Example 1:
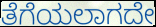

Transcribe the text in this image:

ತೆಗೆಯಲಾಗದೇ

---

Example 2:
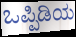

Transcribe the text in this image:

ಒಪ್ಪಿಡಿಯ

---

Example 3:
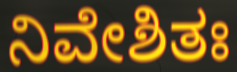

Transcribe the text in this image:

ನಿವೇಶಿತಃ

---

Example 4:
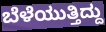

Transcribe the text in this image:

ಬೆಳೆಯುತ್ತಿದ್ದು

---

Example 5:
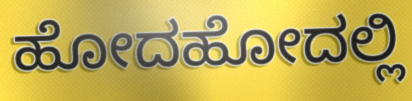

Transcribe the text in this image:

ಹೋದಹೋದಲ್ಲಿ